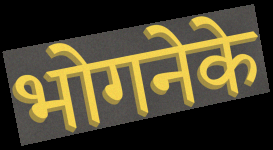
भोगनेके